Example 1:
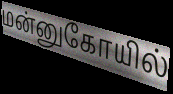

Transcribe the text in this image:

மன்னுகோயில்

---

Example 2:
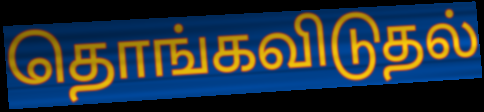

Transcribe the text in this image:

தொங்கவிடுதல்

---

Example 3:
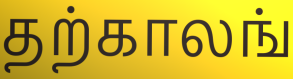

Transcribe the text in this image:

தற்காலங்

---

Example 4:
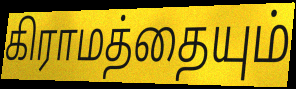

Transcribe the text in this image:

கிராமத்தையும்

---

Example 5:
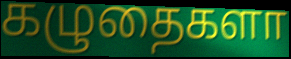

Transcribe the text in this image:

கழுதைகளா